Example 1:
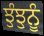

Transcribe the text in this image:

ਝੁੰਝੁਨੂੰ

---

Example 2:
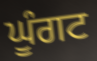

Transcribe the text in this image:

ਘੂੰਗਟ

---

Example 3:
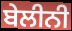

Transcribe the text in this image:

ਬੇਲੀਨੀ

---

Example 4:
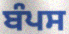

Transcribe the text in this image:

ਬੰਪਸ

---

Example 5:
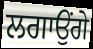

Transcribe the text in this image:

ਲਗਾਉਂਗੇ